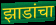
झाडांचा